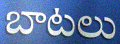
బాటలు